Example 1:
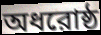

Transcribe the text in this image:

অধরোষ্ঠ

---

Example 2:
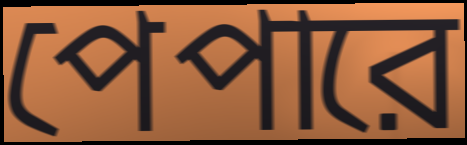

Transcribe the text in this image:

পেপারে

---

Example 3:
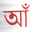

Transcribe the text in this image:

আঁ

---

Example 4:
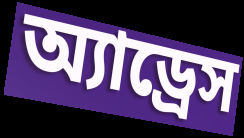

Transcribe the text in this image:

অ্যাড্রেস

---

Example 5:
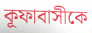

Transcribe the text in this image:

কূফাবাসীকে